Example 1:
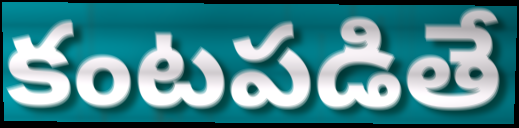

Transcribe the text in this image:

కంటపడితే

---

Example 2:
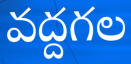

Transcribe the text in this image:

వద్దగల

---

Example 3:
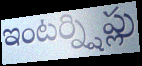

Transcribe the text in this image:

ఇంటర్న్షిప్లు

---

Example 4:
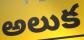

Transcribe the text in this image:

అలుక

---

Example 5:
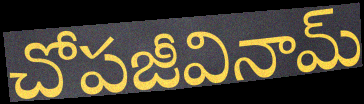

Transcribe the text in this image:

చోపజీవినామ్